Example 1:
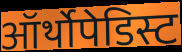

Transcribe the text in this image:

ऑर्थोपेडिस्ट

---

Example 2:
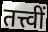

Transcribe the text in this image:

तत्त्वीं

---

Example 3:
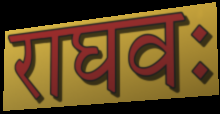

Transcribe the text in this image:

राघवः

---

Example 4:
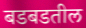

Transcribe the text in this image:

बडबडतील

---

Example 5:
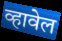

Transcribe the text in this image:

व्हावेल